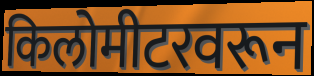
किलोमीटरवरून